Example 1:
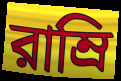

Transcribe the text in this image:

রাম্রি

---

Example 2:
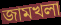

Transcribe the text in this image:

জামখলা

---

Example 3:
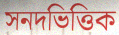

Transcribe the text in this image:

সনদভিত্তিক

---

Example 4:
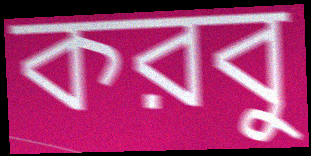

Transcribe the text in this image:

করবু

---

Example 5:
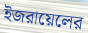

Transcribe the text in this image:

ইজরায়েলের